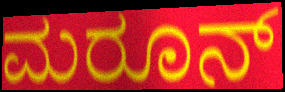
ಮರೂನ್